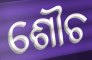
ଶୌଚ